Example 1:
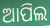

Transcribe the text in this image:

ଆପିଲ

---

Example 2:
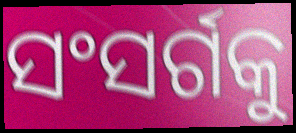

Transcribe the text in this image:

ସଂସର୍ଗକୁ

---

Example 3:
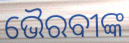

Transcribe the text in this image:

ଭୈରବୀଙ୍କ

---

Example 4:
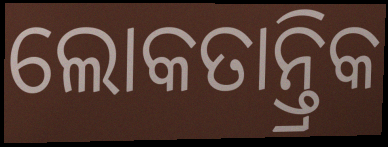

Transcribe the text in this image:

ଲୋକତାନ୍ତ୍ରିକ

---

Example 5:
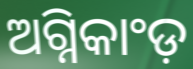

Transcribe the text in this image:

ଅଗ୍ନିକାଂଡ଼